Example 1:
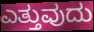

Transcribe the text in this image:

ಎತ್ತುವುದು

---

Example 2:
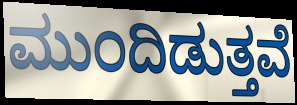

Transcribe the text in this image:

ಮುಂದಿಡುತ್ತವೆ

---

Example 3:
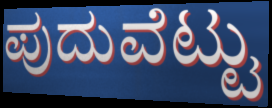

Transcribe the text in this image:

ಪುದುವೆಟ್ಟು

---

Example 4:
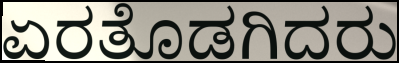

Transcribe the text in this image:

ಏರತೊಡಗಿದರು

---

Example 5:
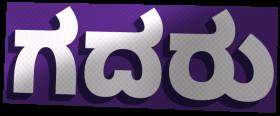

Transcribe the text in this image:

ಗದರು